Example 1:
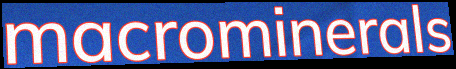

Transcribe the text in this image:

macrominerals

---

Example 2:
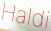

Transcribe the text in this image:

Haldi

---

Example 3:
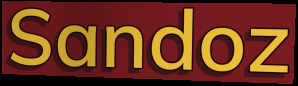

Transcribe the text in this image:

Sandoz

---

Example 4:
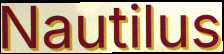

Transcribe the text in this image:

Nautilus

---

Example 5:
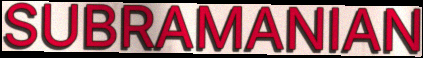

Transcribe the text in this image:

SUBRAMANIAN